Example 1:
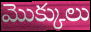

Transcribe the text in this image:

మొక్కులు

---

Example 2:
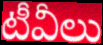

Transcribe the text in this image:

టీవీలు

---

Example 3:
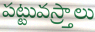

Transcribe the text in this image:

పట్టువస్ర్తాలు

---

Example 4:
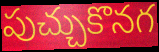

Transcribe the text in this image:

పుచ్చుకొనగ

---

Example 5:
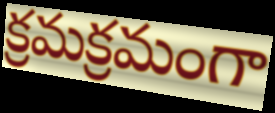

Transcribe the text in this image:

క్రమక్రమంగా